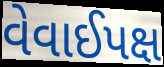
વેવાઈપક્ષ